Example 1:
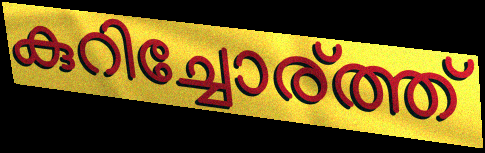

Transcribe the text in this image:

കുറിച്ചോര്ത്ത്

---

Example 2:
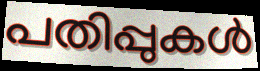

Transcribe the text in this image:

പതിപ്പുകൾ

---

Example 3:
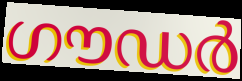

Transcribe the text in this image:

ഗൗഡർ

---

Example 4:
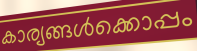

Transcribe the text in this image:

കാര്യങ്ങൾക്കൊപ്പം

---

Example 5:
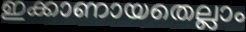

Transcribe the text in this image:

ഇക്കാണായതെല്ലാം